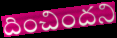
దించిందని